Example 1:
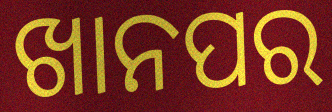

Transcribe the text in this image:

ଖାନପର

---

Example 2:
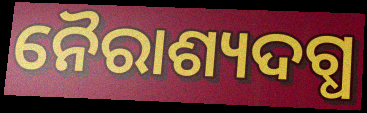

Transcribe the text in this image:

ନୈରାଶ୍ୟଦଗ୍ଧ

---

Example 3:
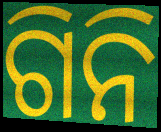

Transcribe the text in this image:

ଗିନି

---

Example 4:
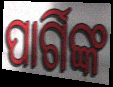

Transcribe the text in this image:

ପାର୍ଗିଙ୍କ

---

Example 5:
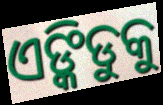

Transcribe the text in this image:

ଏଙ୍କିଡୁକୁ